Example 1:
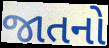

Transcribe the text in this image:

જાતનો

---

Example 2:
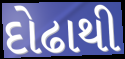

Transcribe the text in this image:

દોઢાથી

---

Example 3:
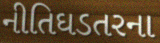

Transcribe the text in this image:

નીતિઘડતરના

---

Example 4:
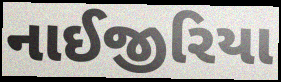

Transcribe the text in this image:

નાઈજીરિયા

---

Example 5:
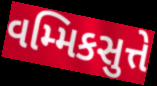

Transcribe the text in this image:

વમ્મિકસુત્તે